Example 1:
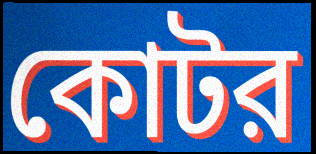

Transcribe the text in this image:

কোটর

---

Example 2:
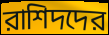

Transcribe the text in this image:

রাশিদদের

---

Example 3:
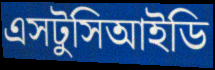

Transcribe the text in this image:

এসটুসিআইডি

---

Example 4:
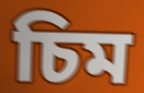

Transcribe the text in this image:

চিম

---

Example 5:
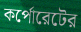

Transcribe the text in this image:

কর্পোরেটের